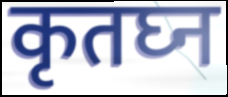
कृतघ्न